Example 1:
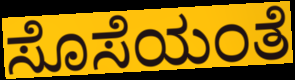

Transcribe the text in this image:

ಸೊಸೆಯಂತೆ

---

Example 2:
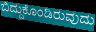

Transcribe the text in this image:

ಬಿದ್ದುಕೊಂಡಿರುವುದು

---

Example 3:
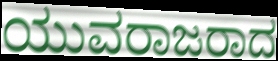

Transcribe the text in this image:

ಯುವರಾಜರಾದ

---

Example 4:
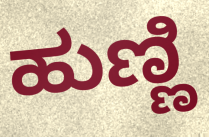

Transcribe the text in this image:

ಹುಣ್ಣಿ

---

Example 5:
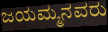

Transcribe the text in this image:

ಜಯಮ್ಮನವರು